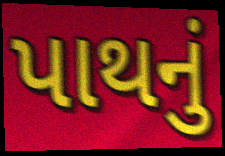
પાથનું